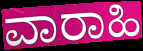
ವಾರಾಹಿ